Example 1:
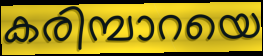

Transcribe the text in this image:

കരിമ്പാറയെ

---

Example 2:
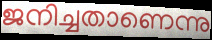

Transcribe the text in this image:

ജനിച്ചതാണെന്നു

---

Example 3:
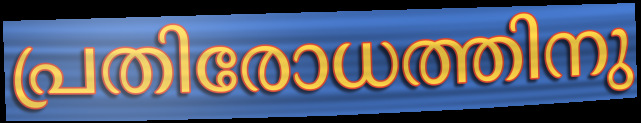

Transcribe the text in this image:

പ്രതിരോധത്തിനു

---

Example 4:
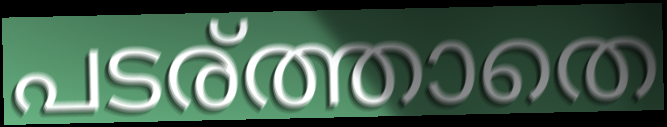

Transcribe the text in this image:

പടര്ത്താതെ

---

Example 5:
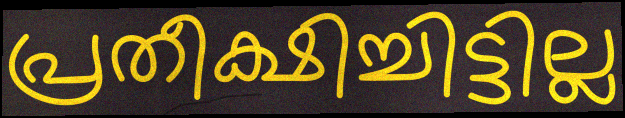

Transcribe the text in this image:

പ്രതീക്ഷിച്ചിട്ടില്ല